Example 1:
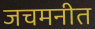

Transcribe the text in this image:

जचमनीत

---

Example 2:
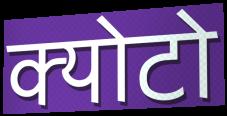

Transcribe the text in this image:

क्‍योटो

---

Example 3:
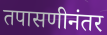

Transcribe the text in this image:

तपासणीनंतर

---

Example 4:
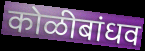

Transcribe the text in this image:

कोळीबांधव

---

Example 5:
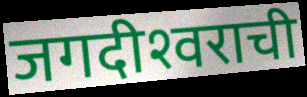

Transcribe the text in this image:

जगदीश्वराची